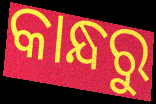
କାନ୍ଧରୁ